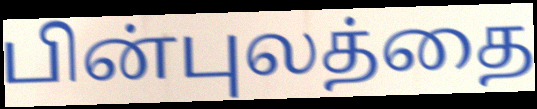
பின்புலத்தை